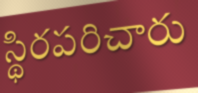
స్థిరపరిచారు